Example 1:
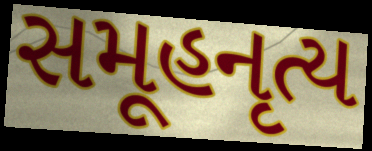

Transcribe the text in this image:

સમૂહનૃત્ય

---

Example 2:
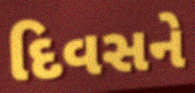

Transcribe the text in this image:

દિવસને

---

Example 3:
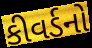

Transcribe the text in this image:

કીવર્ડનો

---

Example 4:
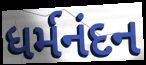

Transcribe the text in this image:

ધર્મનંદન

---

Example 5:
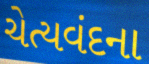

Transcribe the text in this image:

ચેત્યવંદના